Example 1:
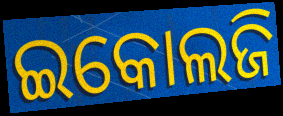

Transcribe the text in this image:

ଇକୋଲଜି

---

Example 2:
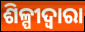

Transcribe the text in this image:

ଶିଳ୍ପୀଦ୍ୱାରା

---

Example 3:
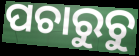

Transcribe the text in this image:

ପଚାରୁଚୁ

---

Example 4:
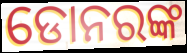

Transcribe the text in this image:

ଡୋନରଙ୍କ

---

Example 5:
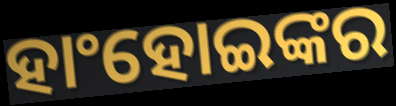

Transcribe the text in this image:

ହାଂହୋଇଙ୍କର